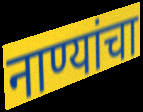
नाण्यांचा